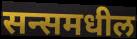
सन्समधील